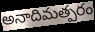
అనాదిమత్పరం